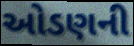
ઓડણની